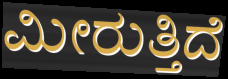
ಮೀರುತ್ತಿದೆ